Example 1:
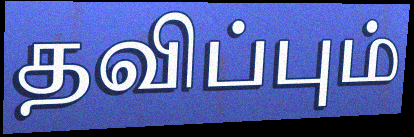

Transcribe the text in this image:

தவிப்பும்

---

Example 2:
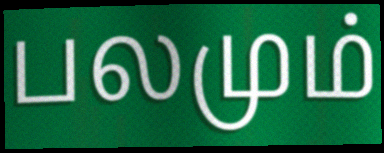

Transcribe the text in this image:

பலமும்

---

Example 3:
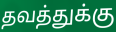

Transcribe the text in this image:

தவத்துக்கு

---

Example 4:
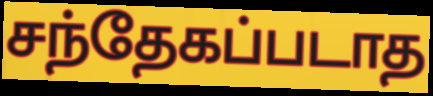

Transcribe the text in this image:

சந்தேகப்படாத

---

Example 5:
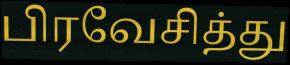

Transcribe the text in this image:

பிரவேசித்து